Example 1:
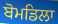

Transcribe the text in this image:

ਬੋਮਡਿਲਾ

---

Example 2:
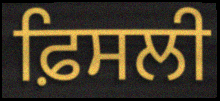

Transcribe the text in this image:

ਫ਼ਿਸਲੀ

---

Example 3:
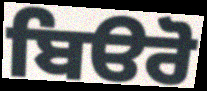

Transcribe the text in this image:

ਬਿੳਰੋ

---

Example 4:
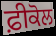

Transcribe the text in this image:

ਫ਼ੀਕੋਲ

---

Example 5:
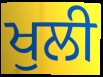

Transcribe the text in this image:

ਖੁਲੀ